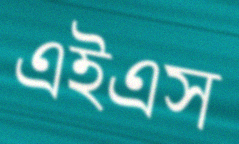
এইএস